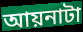
আয়নাটা